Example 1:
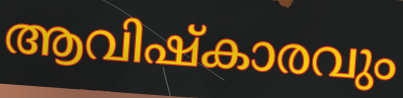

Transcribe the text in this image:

ആവിഷ്കാരവും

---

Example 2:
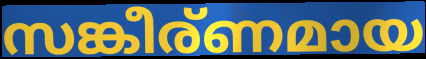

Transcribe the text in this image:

സങ്കീര്ണമായ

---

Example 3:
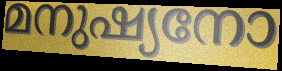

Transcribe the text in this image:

മനുഷ്യനോ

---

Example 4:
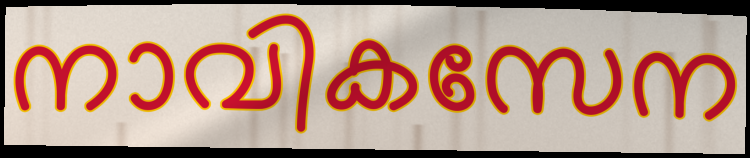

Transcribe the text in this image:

നാവികസേന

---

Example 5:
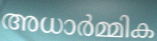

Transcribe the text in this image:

അധാർമ്മിക